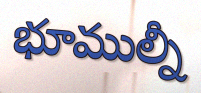
భూముల్నీ